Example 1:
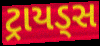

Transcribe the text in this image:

ટ્રાયડ્સ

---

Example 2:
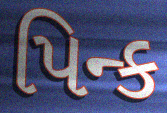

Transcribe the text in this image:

પિન્ક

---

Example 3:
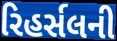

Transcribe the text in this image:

રિહર્સલની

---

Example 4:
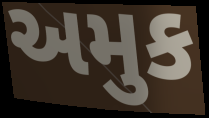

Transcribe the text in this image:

અમુક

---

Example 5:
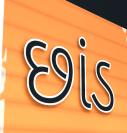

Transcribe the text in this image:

છાંડ